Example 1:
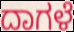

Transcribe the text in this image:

ದಾಗಳೆ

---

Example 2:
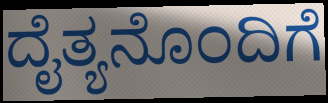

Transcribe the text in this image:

ದೈತ್ಯನೊಂದಿಗೆ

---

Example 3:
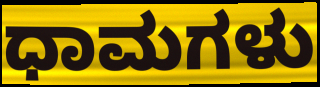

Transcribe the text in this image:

ಧಾಮಗಳು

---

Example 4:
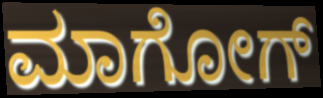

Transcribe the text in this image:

ಮಾಗೋಗ್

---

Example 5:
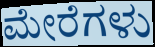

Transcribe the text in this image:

ಮೇರೆಗಳು